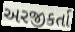
અરજીકર્તા